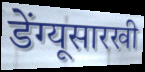
डेंग्यूसारखी